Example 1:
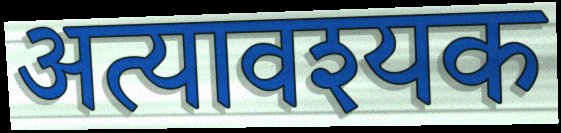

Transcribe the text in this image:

अत्यावश्यक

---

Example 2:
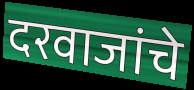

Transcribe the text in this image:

दरवाजांचे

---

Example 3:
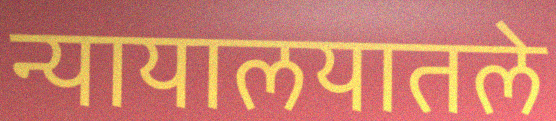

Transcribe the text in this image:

न्यायालयातले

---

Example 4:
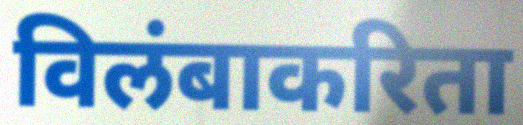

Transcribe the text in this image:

विलंबाकरिता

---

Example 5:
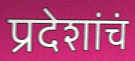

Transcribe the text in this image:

प्रदेशांचं